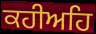
ਕਹੀਅਹਿ